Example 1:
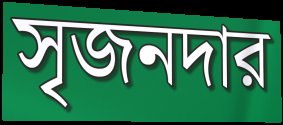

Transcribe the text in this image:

সৃজনদার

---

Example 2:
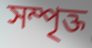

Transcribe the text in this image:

সম্পৃক্ত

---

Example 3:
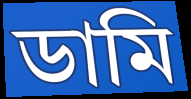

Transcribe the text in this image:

ডামি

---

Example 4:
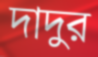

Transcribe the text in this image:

দাদুর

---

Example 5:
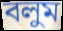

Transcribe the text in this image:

বলুম